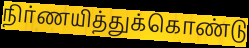
நிர்ணயித்துக்கொண்டு